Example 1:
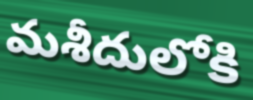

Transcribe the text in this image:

మశీదులోకి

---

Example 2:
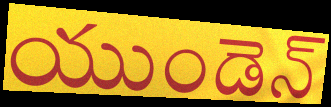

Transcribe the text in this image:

యుండెన్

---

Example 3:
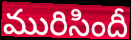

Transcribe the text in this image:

మురిసిందీ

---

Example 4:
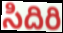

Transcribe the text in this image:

సిదిరి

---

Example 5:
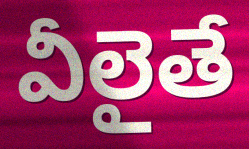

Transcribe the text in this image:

వీలైతే